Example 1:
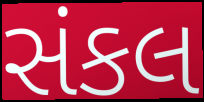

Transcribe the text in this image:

સંકલ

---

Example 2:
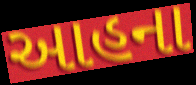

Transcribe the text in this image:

આહના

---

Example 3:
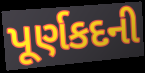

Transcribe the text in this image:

પૂર્ણકદની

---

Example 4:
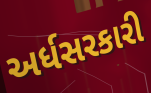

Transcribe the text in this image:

અર્ધસરકારી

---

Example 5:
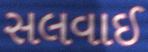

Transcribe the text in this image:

સલવાઈ